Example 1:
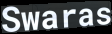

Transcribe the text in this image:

Swaras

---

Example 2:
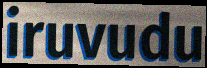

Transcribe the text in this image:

iruvudu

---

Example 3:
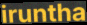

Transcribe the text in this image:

iruntha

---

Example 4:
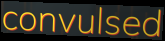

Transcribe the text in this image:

convulsed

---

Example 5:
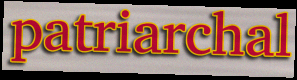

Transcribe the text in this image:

patriarchal